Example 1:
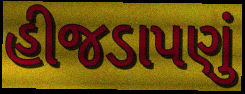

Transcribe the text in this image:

હીજડાપણું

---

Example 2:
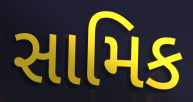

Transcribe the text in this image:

સામિક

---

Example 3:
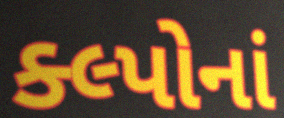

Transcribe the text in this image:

ક્લ્પોનાં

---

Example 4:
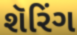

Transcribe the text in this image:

શૅરિંગ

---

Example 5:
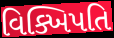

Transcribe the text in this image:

વિક્ખિપતિ